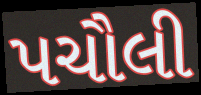
પચૌલી